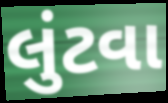
લુંટવા